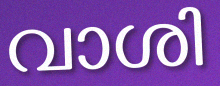
വാശി